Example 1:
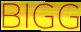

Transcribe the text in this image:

BIGG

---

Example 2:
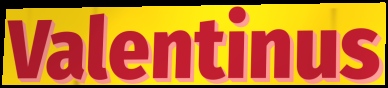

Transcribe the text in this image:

Valentinus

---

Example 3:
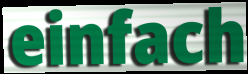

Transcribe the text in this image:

einfach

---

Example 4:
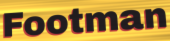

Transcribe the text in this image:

Footman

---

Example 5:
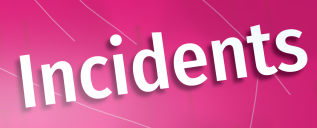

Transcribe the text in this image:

Incidents